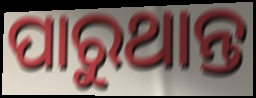
ପାରୁଥାନ୍ତ